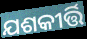
ଯଶକୀର୍ତ୍ତି